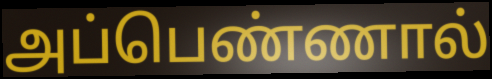
அப்பெண்ணால்